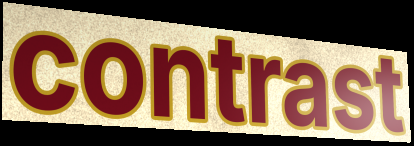
contrast